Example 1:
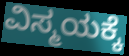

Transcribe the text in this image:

ವಿಸ್ಮಯಕ್ಕೆ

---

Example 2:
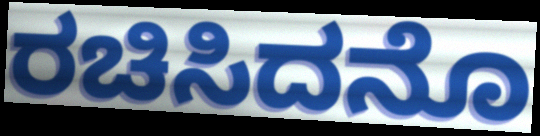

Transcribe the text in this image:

ರಚಿಸಿದನೊ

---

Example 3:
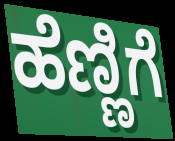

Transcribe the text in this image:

ಹೆಣ್ಣಿಗೆ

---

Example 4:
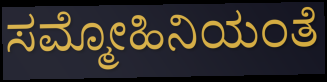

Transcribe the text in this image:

ಸಮ್ಮೋಹಿನಿಯಂತೆ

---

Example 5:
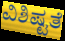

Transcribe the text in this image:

ವಿಶಿಷ್ಟತೆ